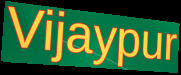
Vijaypur